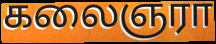
கலைஞரா